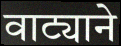
वाट्याने